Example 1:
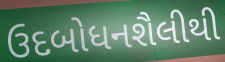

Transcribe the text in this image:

ઉદબોધનશૈલીથી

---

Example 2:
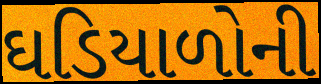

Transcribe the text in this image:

ઘડિયાળોની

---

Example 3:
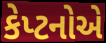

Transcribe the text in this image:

કેપ્ટનોએ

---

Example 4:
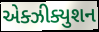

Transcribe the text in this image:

એક્ઝીક્યુશન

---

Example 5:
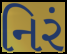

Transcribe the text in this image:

નિરં